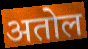
अतोल